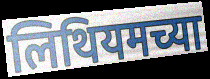
लिथियमच्या